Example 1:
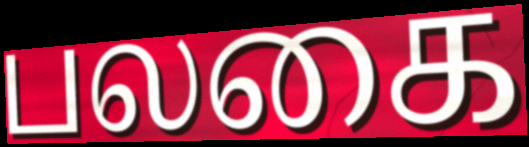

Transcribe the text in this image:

பலகை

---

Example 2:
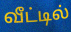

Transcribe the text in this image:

வீட்டில்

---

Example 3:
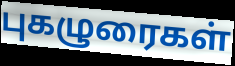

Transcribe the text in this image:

புகழுரைகள்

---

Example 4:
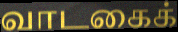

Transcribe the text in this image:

வாடகைக்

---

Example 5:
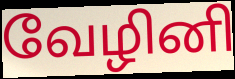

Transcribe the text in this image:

வேழினி